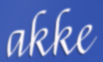
akke